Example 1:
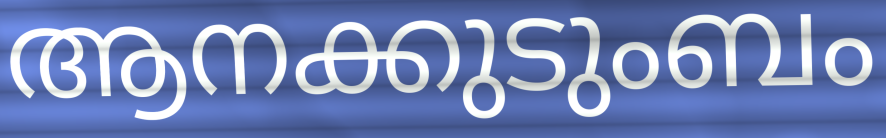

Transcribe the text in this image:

ആനക്കുടുംബം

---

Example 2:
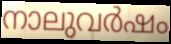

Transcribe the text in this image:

നാലുവർഷം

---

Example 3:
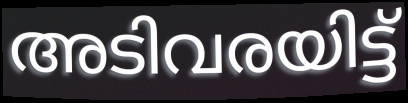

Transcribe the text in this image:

അടിവരയിട്ട്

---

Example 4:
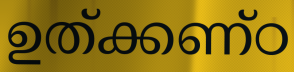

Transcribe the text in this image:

ഉത്ക്കണ്ഠ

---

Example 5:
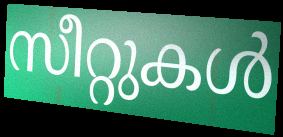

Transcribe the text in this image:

സീറ്റുകൾ